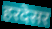
हरदेसर